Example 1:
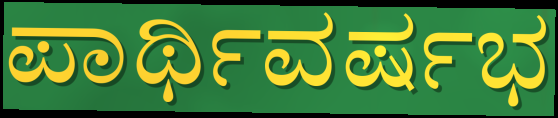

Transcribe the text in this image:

ಪಾರ್ಥಿವರ್ಷಭ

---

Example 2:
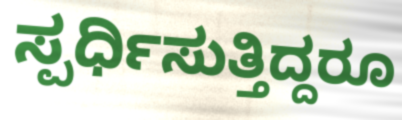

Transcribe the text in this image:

ಸ್ಪರ್ಧಿಸುತ್ತಿದ್ದರೂ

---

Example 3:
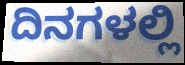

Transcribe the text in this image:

ದಿನಗಳಲ್ಲಿ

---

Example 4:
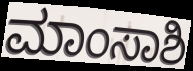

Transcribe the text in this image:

ಮಾಂಸಾಶಿ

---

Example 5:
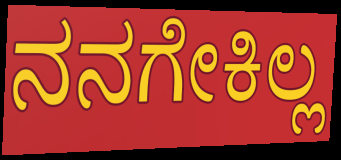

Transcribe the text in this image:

ನನಗೇಕಿಲ್ಲ